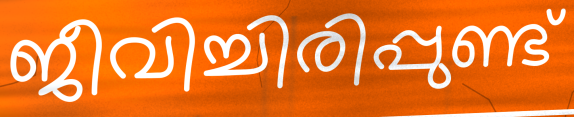
ജീവിച്ചിരിപ്പുണ്ട്